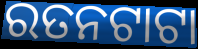
ରତନଟାଟା